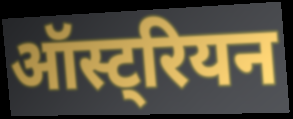
ऑस्ट्रियन